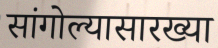
सांगोल्यासारख्या